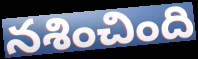
నశించింది